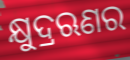
କ୍ଷୁଦ୍ରଋଣର